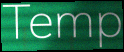
Temp